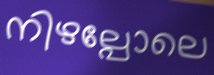
നിഴല്പോലെ